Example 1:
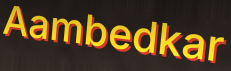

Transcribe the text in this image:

Aambedkar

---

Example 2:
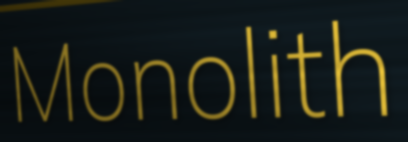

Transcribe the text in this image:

Monolith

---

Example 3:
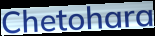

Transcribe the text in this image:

Chetohara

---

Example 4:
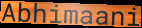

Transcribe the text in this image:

Abhimaani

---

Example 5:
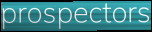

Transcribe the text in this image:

prospectors